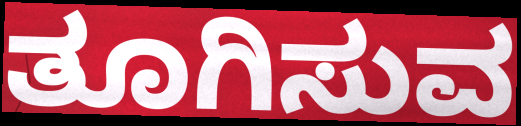
ತೂಗಿಸುವ